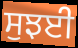
ਸੁਝਈ